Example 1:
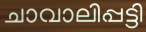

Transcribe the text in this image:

ചാവാലിപ്പട്ടി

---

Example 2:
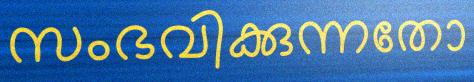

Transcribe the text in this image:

സംഭവിക്കുന്നതോ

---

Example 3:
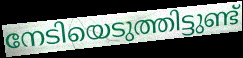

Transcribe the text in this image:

നേടിയെടുത്തിട്ടുണ്ട്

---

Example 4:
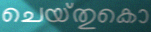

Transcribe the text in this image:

ചെയ്‌തുകൊ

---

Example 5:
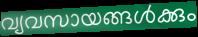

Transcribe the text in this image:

വ്യവസായങ്ങൾക്കും